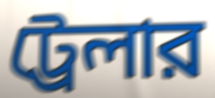
ট্রেলার